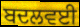
ਬਦਲਵਈ